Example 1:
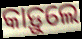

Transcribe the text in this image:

କାଡ଼ୁଲେ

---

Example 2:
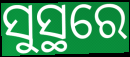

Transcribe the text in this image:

ସୁସ୍ଥରେ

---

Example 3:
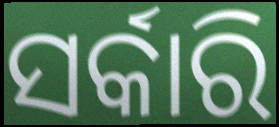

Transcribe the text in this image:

ସର୍କାରି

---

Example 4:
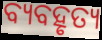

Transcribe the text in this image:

ବ୍ୟବହୃତ୍ୟ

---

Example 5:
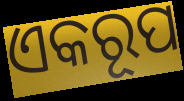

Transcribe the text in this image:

ଏକରୂପ